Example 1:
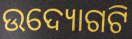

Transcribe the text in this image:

ଉଦ୍ୟୋଗଟି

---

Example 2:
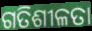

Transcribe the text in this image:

ଗତିଶୀଳତା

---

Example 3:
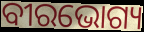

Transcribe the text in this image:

ବୀରଭୋଗ୍ୟ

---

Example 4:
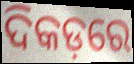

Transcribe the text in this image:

ଦିକଡ଼ରେ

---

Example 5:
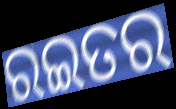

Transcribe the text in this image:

ରଇତର